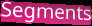
Segments